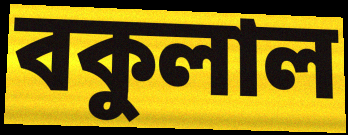
বকুলাল